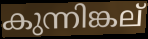
കുന്നിങ്കല്